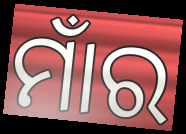
ମାଁର